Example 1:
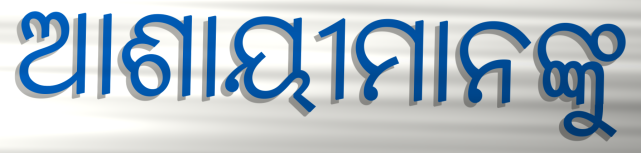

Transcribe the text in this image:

ଆଶାୟୀମାନଙ୍କୁ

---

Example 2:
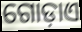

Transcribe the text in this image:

ଗୋଡ଼ାଏ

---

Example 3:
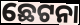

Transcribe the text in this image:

ଛେଟନା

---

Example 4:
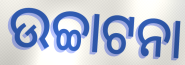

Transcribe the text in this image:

ଉଚ୍ଚାଟନା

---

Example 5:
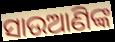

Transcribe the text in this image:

ସାଉଆଣିଙ୍କ